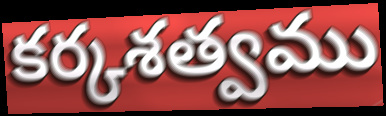
కర్కశత్వము